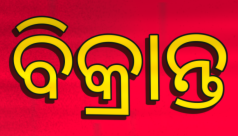
ବିକ୍ରାନ୍ତ